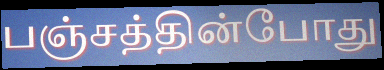
பஞ்சத்தின்போது